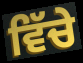
ਵਿੱਚੇ